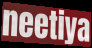
neetiya